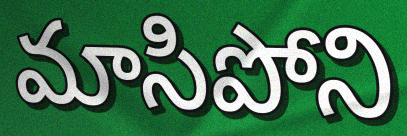
మాసిపోని